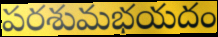
పరశుమభయదం